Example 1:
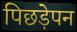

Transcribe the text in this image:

पिछड़ेपन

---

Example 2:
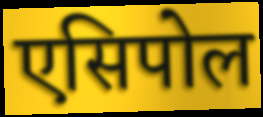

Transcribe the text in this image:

एसिपोल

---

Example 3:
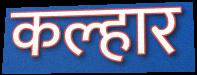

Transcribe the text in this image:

कल्हार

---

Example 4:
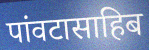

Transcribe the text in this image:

पांवटासाहिब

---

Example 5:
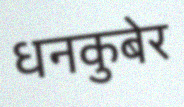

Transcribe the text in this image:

धनकुबेर